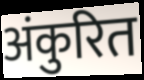
अंकुरित